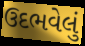
ઉદભવેલું